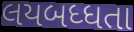
લયબધ્ધતા